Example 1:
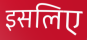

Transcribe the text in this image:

इसलिए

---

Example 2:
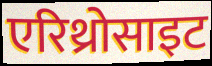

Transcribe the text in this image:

एरिथ्रोसाइट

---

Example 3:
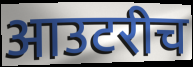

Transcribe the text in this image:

आउटरीच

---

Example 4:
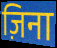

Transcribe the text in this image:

ज़िना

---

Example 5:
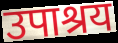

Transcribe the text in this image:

उपाश्रय